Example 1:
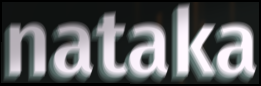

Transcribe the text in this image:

nataka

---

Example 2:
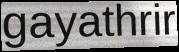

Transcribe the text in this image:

gayathrir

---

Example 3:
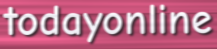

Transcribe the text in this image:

todayonline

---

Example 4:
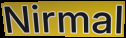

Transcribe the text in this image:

Nirmal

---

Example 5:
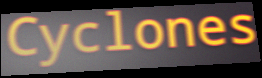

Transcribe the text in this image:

Cyclones